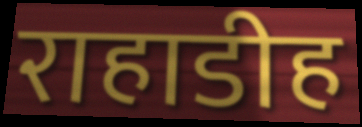
राहाडीह